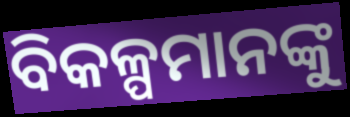
ବିକଳ୍ପମାନଙ୍କୁ